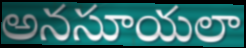
అనసూయలా